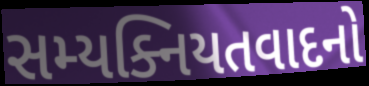
સમ્યક્નિયતવાદનો